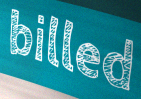
billed